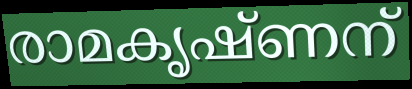
രാമകൃഷ്ണന്